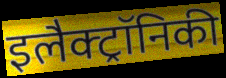
इलैक्ट्रॉनिकी